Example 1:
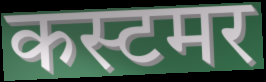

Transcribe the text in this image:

कस्‍टमर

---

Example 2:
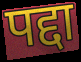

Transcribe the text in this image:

पद्दा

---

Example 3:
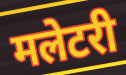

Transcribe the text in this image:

मलेटरी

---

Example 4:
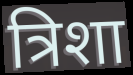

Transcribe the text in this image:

त्रिशा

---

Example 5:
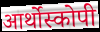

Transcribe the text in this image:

आर्थोस्कोपी